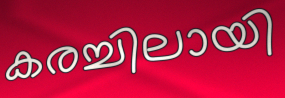
കരച്ചിലായി